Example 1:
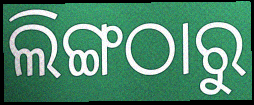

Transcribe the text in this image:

ଲିଙ୍ଗଠାରୁ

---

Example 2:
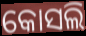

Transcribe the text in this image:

କୋସଲି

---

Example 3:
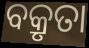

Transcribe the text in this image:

ବକ୍ରୃତା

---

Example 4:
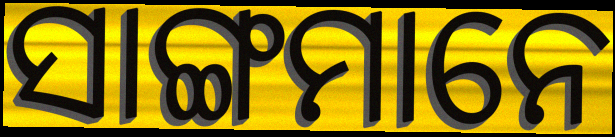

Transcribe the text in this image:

ସାଙ୍ଗମାନେ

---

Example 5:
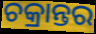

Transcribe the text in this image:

ଚକ୍ରାନ୍ତର